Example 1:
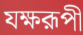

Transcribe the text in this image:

যক্ষরূপী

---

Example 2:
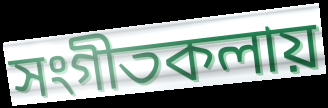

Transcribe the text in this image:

সংগীতকলায়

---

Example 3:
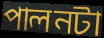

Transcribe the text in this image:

পালনটা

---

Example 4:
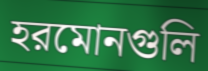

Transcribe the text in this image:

হরমোনগুলি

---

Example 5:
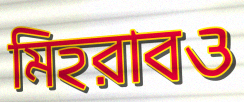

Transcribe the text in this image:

মিহরাবও